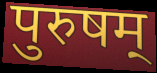
पुरुषम्